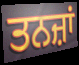
ਤਨਜ਼ਾਂ